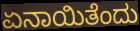
ಏನಾಯಿತೆಂದು